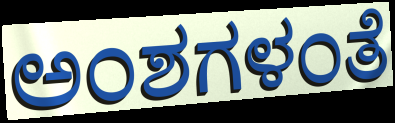
ಅಂಶಗಳಂತೆ